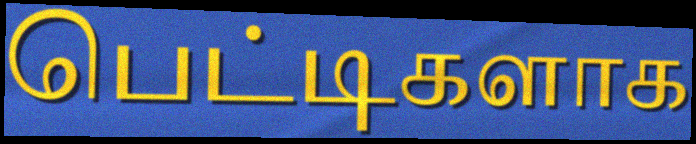
பெட்டிகளாக